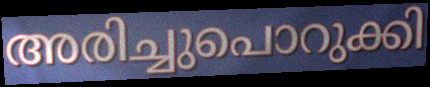
അരിച്ചുപൊറുക്കി